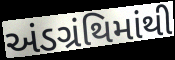
અંડગ્રંથિમાંથી